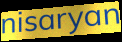
nisaryan